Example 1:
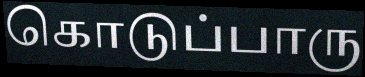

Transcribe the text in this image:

கொடுப்பாரு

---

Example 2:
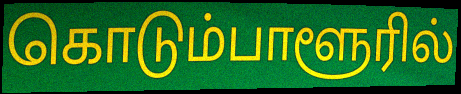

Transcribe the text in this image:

கொடும்பாளூரில்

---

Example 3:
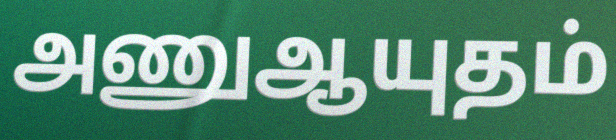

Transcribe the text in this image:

அணுஆயுதம்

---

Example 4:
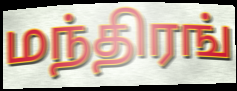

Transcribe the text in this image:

மந்திரங்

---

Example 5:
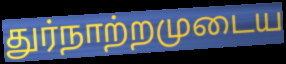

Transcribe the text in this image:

துர்நாற்றமுடைய